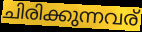
ചിരിക്കുന്നവര്